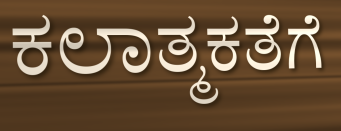
ಕಲಾತ್ಮಕತೆಗೆ